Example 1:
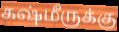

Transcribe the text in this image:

கஷ்மீருக்கு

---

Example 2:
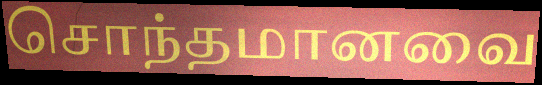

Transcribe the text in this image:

சொந்தமானவை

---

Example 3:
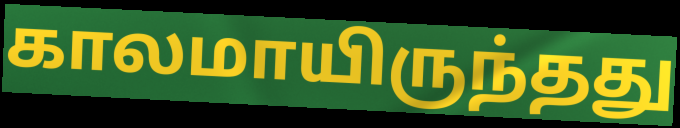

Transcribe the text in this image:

காலமாயிருந்தது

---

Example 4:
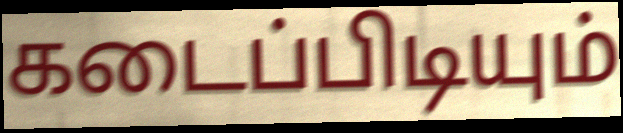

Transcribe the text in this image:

கடைப்பிடியும்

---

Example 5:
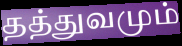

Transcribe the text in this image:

தத்துவமும்